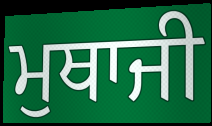
ਮੁਥਾਜੀ